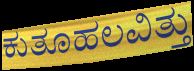
ಕುತೂಹಲವಿತ್ತು